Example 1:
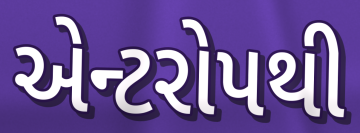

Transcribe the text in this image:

એન્ટરોપથી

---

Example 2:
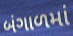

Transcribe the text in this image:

બંગાળમાં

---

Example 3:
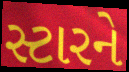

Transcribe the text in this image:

સ્ટારને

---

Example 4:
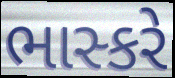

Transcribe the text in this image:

ભાસ્કરે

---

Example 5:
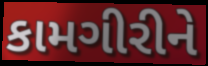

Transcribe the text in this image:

કામગીરીને